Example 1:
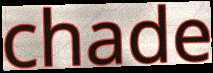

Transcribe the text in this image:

chade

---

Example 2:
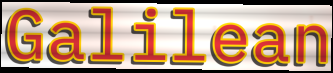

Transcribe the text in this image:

Galilean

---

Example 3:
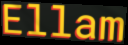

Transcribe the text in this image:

Ellam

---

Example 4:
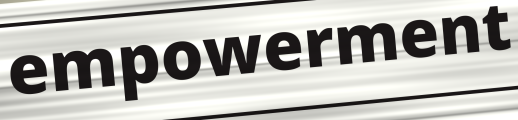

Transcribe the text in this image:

empowerment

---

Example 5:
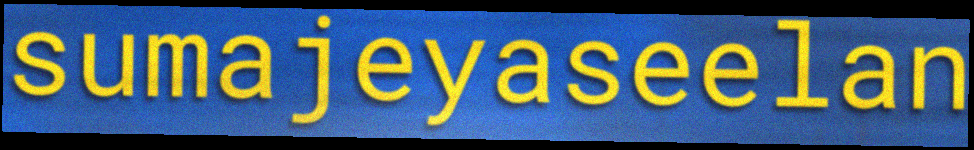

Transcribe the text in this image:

sumajeyaseelan